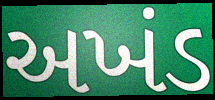
અખંડ